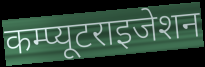
कम्प्यूटराइजेशन